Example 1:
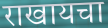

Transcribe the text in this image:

राखायचा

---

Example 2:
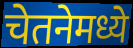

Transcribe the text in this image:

चेतनेमध्ये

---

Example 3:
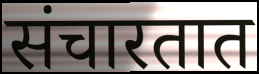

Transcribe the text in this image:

संचारतात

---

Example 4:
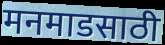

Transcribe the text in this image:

मनमाडसाठी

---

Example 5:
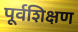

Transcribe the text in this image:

पूर्वशिक्षण